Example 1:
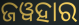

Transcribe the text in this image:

ଜୱହାର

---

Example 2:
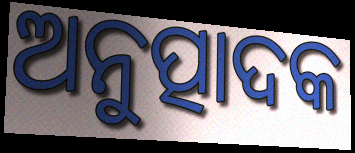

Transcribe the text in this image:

ଅନୁତ୍ପାଦକ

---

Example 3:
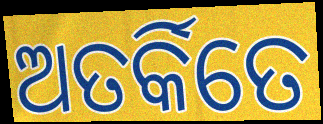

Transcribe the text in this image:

ଅତର୍କିତେ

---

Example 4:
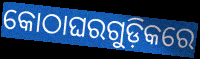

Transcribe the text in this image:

କୋଠାଘରଗୁଡ଼ିକରେ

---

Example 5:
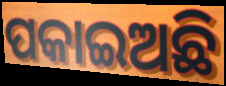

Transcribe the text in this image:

ପକାଇଅଛି